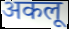
अकलू